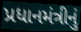
પ્રધાનમંત્રીનું